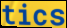
tics